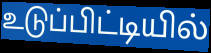
உடுப்பிட்டியில்